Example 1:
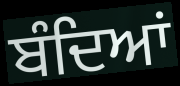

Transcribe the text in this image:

ਬੰਦਿਆਂ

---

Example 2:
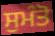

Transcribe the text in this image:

ਸੁਮੰਤੋ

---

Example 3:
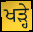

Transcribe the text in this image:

ਖਡ਼੍ਹੇ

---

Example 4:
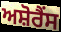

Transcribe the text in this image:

ਅਸ਼ੋਰੈਂਸ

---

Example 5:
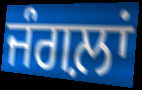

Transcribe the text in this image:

ਜੰਗਲ਼ਾਂ